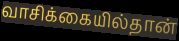
வாசிக்கையில்தான்